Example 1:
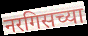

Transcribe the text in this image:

नरगिसच्या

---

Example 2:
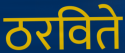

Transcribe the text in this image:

ठरविते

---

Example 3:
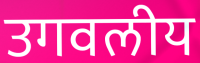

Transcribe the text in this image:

उगवलीय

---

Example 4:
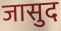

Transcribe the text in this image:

जासुद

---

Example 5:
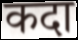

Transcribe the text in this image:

कदा